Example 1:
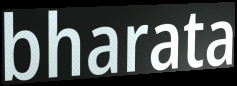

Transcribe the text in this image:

bharata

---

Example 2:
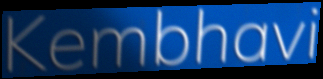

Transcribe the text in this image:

Kembhavi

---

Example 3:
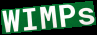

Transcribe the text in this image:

WIMPs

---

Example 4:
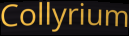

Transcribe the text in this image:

Collyrium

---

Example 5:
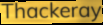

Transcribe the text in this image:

Thackeray